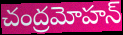
చంద్రమోహన్